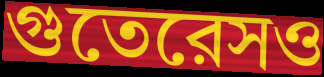
গুতেরেসও